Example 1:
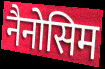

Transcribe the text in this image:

नैनोसिम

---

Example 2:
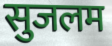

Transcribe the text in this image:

सुजलम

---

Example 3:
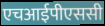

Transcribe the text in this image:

एचआईपीएससी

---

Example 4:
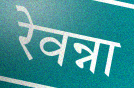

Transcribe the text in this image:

रेवन्ना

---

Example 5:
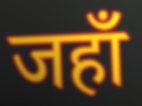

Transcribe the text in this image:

जहाँ